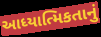
આધ્યાત્મિકતાનું